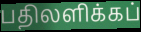
பதிலளிக்கப்